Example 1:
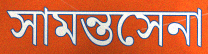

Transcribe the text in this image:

সামন্তসেনা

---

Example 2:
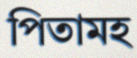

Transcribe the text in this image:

পিতামহ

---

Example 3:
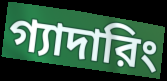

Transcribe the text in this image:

গ্যাদারিং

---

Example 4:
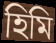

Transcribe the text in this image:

হিমি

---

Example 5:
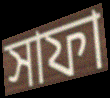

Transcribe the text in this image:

সাফা